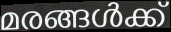
മരങ്ങൾക്ക്